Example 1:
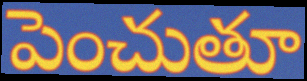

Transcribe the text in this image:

పెంచుతూ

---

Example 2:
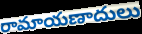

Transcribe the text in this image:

రామాయణాదులు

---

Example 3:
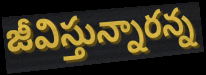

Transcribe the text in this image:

జీవిస్తున్నారన్న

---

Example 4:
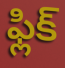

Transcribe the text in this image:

ఫ్లిక్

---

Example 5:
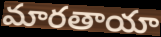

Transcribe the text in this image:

మారతాయా